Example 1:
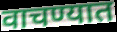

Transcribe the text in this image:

वाचण्यात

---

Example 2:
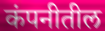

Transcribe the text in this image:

कंपनीतील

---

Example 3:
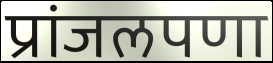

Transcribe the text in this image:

प्रांजलपणा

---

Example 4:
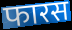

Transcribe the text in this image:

फारस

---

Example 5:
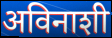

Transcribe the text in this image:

अविनाशी